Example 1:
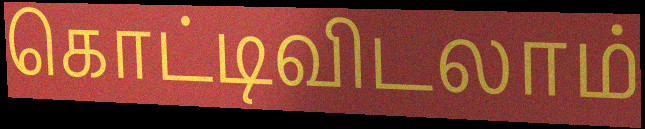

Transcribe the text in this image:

கொட்டிவிடலாம்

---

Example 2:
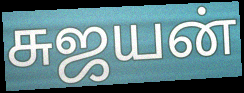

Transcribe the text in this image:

சுஜயன்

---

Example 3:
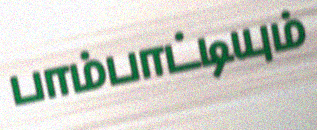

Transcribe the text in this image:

பாம்பாட்டியும்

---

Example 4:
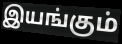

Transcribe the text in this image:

இயங்கும்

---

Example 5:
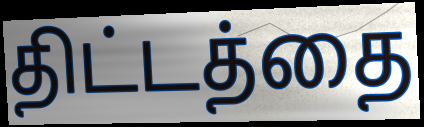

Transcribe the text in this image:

திட்டத்தை